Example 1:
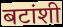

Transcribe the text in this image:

बटांशी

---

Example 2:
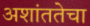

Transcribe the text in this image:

अशांततेचा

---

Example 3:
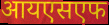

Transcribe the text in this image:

आयएसएफ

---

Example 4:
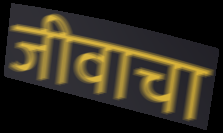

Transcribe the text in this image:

जीवाचा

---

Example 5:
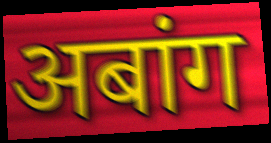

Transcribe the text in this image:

अबांग